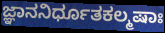
ಜ್ಞಾನನಿರ್ಧೂತಕಲ್ಮಷಾಃ